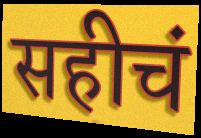
सहीचं